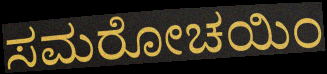
ಸಮರೋಚಯಿಂ